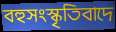
বহুসংস্কৃতিবাদে